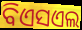
ବିଏସଏଲ